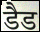
डैड